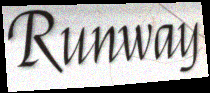
Runway